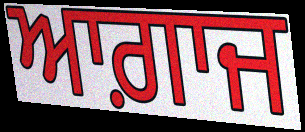
ਆਗ਼ਾਜ